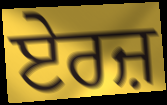
ਏਰਜ਼